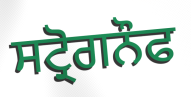
ਸਟ੍ਰੋਗਨੌਫ